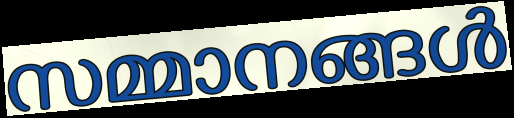
സമ്മാനങ്ങൾ